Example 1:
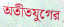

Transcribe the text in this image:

অতীতযুগের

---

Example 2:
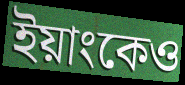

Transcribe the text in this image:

ইয়াংকেও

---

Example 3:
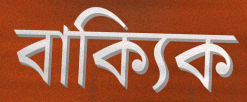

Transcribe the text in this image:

বাক্যিক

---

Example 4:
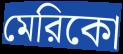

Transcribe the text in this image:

মেরিকো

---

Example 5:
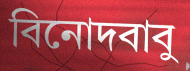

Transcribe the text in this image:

বিনোদবাবু